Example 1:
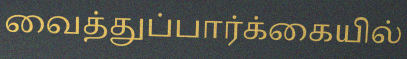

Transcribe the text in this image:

வைத்துப்பார்க்கையில்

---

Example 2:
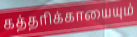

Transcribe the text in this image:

கத்தரிக்காயையும்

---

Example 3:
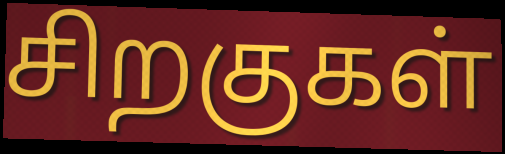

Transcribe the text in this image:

சிறகுகள்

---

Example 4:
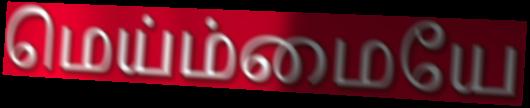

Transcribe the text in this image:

மெய்ம்மையே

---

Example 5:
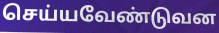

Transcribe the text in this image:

செய்யவேண்டுவன